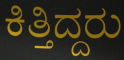
ಕಿತ್ತಿದ್ದರು